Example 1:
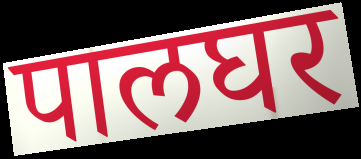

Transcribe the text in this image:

पालघर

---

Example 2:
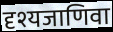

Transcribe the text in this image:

दृश्यजाणिवा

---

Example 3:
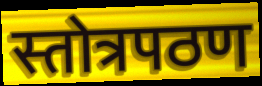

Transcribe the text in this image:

स्तोत्रपठण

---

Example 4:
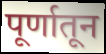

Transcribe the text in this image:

पूर्णातून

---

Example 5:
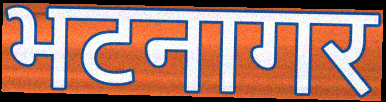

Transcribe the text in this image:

भटनागर